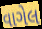
વાગેલ